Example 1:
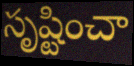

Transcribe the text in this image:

సృష్టించా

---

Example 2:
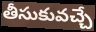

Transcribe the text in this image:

తీసుకువచ్చే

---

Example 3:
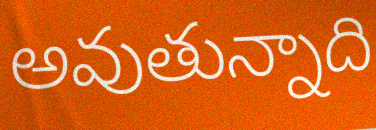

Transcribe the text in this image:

అవుతున్నాది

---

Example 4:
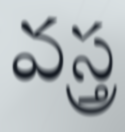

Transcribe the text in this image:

వస్త్ర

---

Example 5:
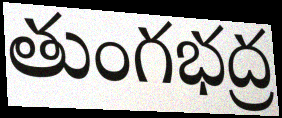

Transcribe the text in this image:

తుంగభద్ర